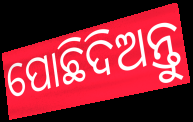
ପୋଛିଦିଅନ୍ତୁ